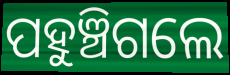
ପହୁଞ୍ଚିଗଲେ